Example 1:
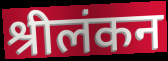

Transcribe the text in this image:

श्रीलंकन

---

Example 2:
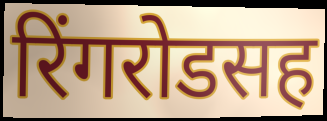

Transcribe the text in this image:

रिंगरोडसह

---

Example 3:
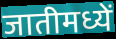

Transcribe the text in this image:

जातीमध्यें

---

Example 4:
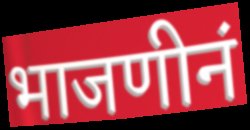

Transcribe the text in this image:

भाजणीनं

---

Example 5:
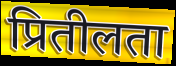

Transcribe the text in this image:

प्रितीलता